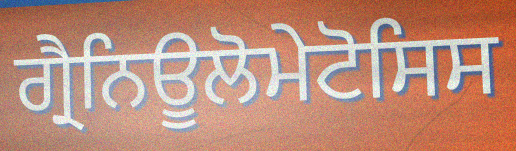
ਗ੍ਰੈਨਿਊਲੋਮੇਟੋਸਿਸ